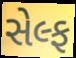
સેલ્ફ